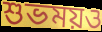
শুভময়ও